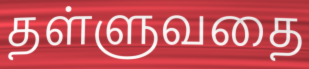
தள்ளுவதை